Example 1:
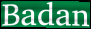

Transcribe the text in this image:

Badan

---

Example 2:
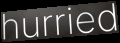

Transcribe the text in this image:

hurried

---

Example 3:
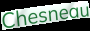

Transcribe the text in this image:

Chesneau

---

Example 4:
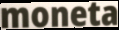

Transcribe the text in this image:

moneta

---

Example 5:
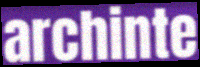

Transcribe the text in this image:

archinte